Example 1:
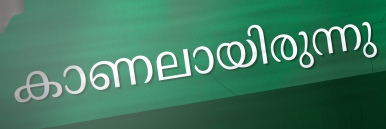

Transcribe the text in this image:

കാണലായിരുന്നു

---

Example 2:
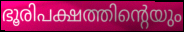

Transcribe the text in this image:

ഭൂരിപക്ഷത്തിന്റെയും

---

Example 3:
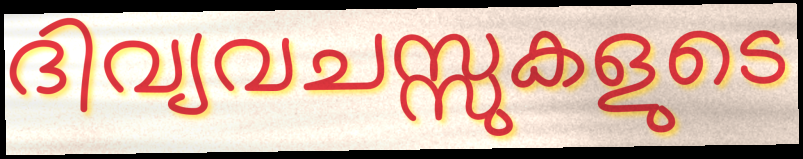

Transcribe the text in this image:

ദിവ്യവചസ്സുകളുടെ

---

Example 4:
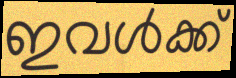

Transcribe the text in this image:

ഇവൾക്ക്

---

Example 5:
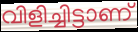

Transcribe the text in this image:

വിളിച്ചിട്ടാണ്